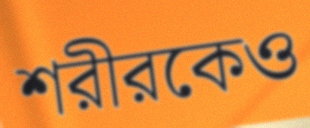
শরীরকেও